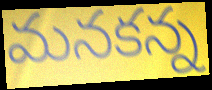
మనకన్న